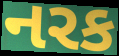
નરક